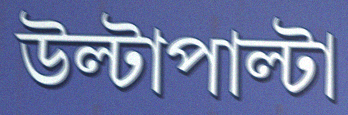
উল্টাপাল্টা